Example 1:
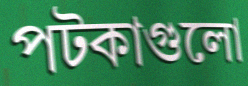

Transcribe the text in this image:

পটকাগুলো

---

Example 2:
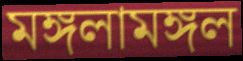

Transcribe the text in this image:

মঙ্গলামঙ্গল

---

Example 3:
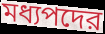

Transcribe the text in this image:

মধ্যপদের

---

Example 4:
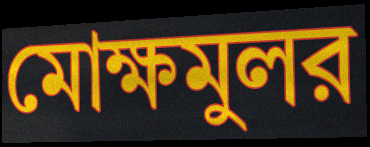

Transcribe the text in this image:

মোক্ষমুলর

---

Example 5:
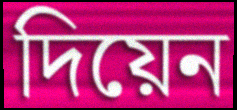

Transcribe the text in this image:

দিয়েন